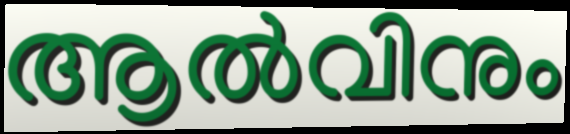
ആൽവിനും